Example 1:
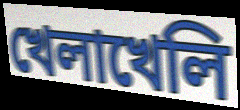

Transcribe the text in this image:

খেলাখেলি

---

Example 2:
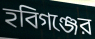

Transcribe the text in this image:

হবিগঞ্জের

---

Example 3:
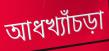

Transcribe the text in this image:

আধখ্যাঁচড়া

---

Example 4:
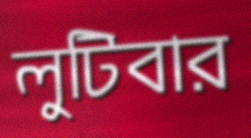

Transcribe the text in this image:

লুটিবার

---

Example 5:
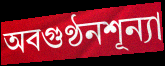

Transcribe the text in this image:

অবগুণ্ঠনশূন্যা